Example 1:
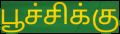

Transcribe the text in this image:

பூச்சிக்கு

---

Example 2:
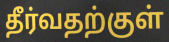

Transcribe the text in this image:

தீர்வதற்குள்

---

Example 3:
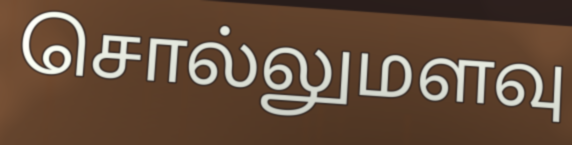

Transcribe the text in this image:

சொல்லுமளவு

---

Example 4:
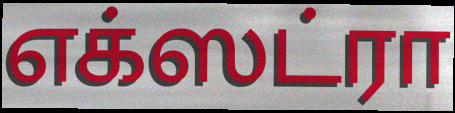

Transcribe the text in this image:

எக்ஸட்ரா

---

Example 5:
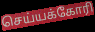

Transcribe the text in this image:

செய்யக்கோரி